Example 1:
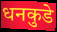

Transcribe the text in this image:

धनकुडे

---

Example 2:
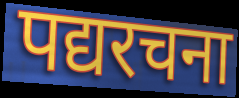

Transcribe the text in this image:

पद्यरचना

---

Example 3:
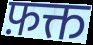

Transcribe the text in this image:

फ़क्त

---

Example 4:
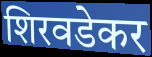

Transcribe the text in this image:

शिरवडेकर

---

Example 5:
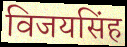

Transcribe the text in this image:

विजयसिंह